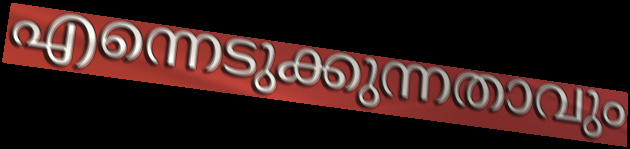
എന്നെടുക്കുന്നതാവും